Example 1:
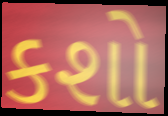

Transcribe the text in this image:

કશો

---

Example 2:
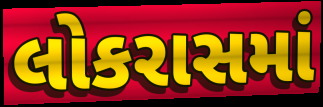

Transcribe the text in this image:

લોકરાસમાં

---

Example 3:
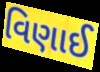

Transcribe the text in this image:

વિણાઈ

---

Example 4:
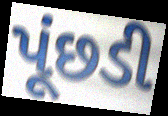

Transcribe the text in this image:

પૂંછડી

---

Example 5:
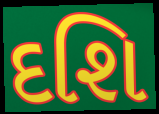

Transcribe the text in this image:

દશિ